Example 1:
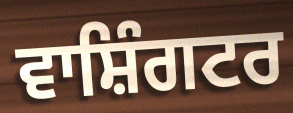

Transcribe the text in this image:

ਵਾਸ਼ਿੰਗਟਰ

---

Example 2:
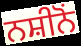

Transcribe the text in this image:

ਨਸ਼ੀਨੋਂ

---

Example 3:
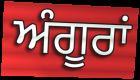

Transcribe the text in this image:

ਅੰਗੂਰਾਂ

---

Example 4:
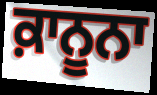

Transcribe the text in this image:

ਕ਼ਾਨੂਨਾ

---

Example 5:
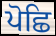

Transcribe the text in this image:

ਪੋਛਿ